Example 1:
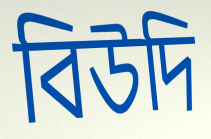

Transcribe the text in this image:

বিউদি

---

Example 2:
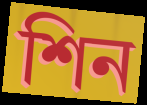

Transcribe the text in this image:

শিন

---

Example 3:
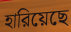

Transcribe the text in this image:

হারিয়েছে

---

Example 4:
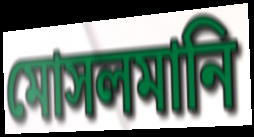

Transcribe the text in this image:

মোসলমানি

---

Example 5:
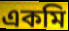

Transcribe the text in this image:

একমি